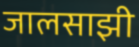
जालसाझी